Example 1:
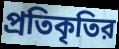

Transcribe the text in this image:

প্রতিকৃতির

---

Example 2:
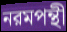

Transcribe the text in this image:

নরমপন্থী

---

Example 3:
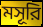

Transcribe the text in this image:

মসূরি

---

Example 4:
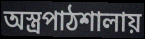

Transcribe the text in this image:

অস্ত্রপাঠশালায়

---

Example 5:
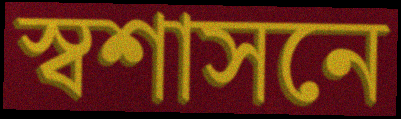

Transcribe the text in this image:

স্বশাসনে